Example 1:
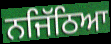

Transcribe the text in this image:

ਨਜਿੱਠਿਆ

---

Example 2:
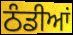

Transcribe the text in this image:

ਠੰਡੀਆਂ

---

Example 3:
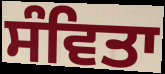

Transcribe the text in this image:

ਸੰਵਿਤਾ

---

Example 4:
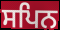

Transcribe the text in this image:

ਸਪਿਨ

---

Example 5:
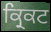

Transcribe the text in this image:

ਕ੍ਰਿਕਟ